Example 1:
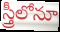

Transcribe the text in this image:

స్త్రీలోనూ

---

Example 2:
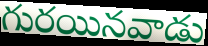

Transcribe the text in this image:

గురయినవాడు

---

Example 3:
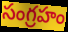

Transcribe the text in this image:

సంగ్రహం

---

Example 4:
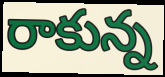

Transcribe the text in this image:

రాకున్న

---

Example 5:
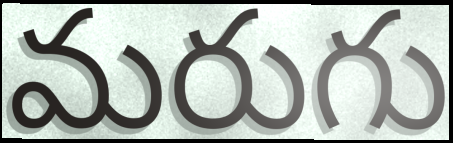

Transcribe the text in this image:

మరుగు